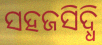
ସହଜସିଦ୍ଧି